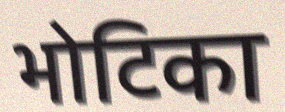
भोटिका